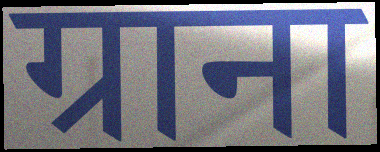
ग्राना